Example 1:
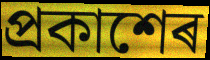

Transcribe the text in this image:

প্ৰকাশেৰ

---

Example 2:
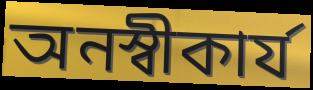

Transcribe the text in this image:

অনস্বীকাৰ্য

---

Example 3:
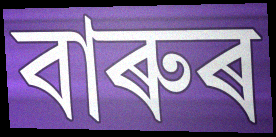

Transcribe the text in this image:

বাৰুৰ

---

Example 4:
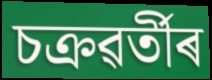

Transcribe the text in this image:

চক্ৰৱৰ্তীৰ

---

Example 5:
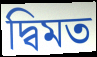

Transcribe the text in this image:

দ্বিমত